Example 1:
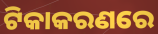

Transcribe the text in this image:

ଟିକାକରଣରେ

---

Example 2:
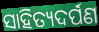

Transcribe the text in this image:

ସାହିତ୍ୟଦର୍ପଣ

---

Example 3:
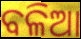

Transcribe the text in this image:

ବଳିଆ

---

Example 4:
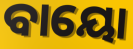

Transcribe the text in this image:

ବାୟୋ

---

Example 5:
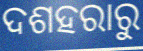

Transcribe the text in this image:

ଦଶହରାରୁ